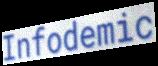
Infodemic